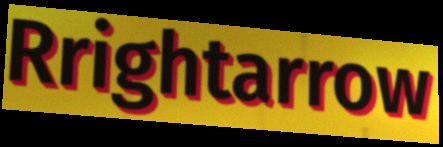
Rrightarrow